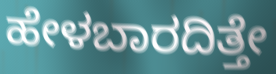
ಹೇಳಬಾರದಿತ್ತೇ